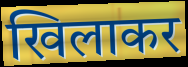
खिलाकर